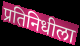
प्रतिनिधीला